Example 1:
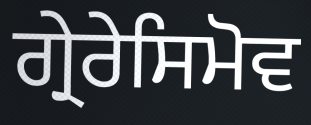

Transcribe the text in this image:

ਗ੍ਰੇਰੇਸਿਮੋਵ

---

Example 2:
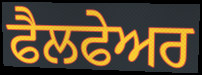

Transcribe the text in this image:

ਫੈਲਫੇਅਰ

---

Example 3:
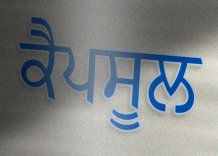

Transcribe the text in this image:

ਕੈਪਸੂਲ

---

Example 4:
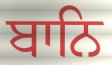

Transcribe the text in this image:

ਬਾਨਿ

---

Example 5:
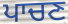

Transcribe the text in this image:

ਪਾਚਣ